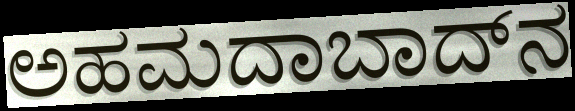
ಅಹಮದಾಬಾದ್‌ನ